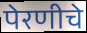
पेरणीचे